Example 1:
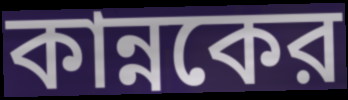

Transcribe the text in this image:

কান্নকের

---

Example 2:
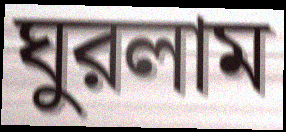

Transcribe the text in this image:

ঘুরলাম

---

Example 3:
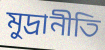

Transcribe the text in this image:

মুদ্রানীতি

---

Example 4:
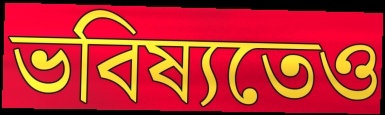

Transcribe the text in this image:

ভবিষ্যতেও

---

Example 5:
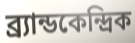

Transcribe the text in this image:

ব্র্যান্ডকেন্দ্রিক